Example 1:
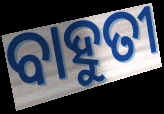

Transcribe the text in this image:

ବାହୁତୀ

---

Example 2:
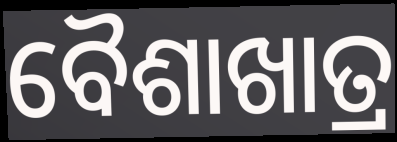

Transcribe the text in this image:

ବୈଶାଖାତ୍ର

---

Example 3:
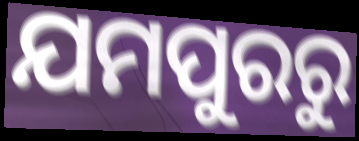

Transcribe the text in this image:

ଯମପୁରରୁ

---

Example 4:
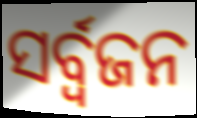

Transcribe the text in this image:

ସର୍ବ୍ବଜନ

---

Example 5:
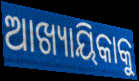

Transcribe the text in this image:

ଆଖ୍ୟାୟିକାକୁ